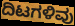
ದಿಟಗಳಿವು